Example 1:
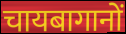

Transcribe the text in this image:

चायबागानों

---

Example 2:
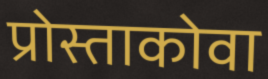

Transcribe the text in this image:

प्रोस्ताकोवा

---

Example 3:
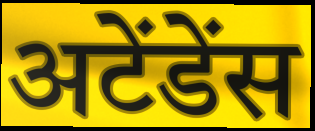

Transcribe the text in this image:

अटेंडेंस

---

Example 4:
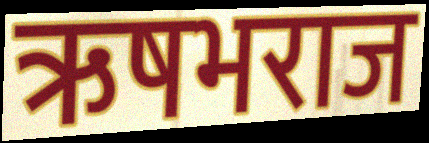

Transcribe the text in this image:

ऋषभराज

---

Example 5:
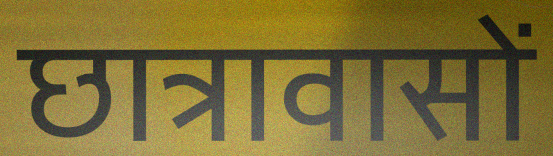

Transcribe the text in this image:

छात्रावासों